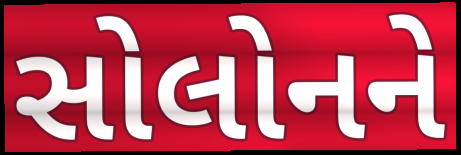
સોલોનને